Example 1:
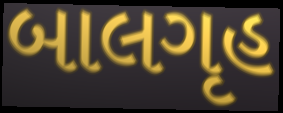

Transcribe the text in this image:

બાલગૃહ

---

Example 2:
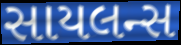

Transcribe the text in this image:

સાયલન્સ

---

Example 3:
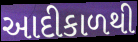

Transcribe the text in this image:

આદીકાળથી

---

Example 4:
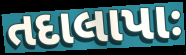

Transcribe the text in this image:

તદાલાપાઃ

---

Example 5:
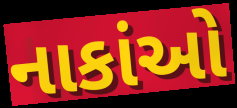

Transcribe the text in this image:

નાકાંઓ